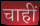
चाहीं